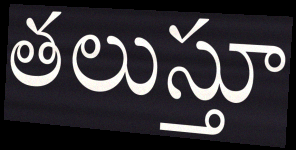
తలుస్తూ